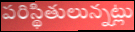
పరిస్థితులున్నట్లు